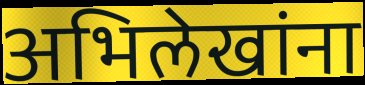
अभिलेखांना